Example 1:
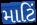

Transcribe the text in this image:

માટિં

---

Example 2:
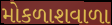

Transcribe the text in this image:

મોકળાશવાળા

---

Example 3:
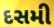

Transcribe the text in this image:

દસમી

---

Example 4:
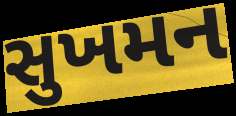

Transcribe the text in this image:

સુખમન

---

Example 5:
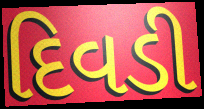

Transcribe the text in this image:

દિવડી